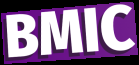
BMIC